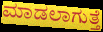
ಮಾಡಲಾಗುತ್ತೆ